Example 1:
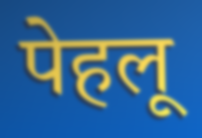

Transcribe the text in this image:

पेहलू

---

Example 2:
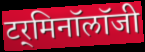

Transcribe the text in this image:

टर्मिनॉलॉजी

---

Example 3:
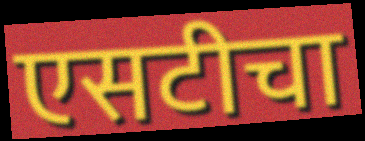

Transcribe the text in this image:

एसटीचा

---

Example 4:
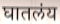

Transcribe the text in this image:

घातलंय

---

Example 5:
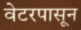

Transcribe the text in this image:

वेटरपासून